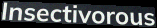
Insectivorous